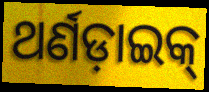
ଥର୍ଣଡ଼ାଇକ୍